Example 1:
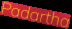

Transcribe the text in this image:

Padartha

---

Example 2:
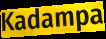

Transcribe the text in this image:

Kadampa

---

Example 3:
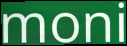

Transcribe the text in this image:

moni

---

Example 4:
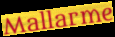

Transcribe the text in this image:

Mallarme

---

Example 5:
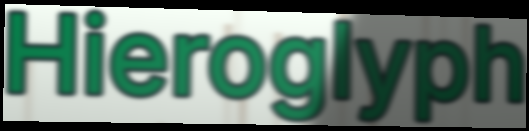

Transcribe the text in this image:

Hieroglyph